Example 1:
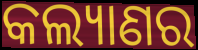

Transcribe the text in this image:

କଲ୍ୟାଣର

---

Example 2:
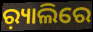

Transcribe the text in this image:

ର଼୍ୟାଲିରେ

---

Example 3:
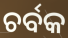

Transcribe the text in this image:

ଚର୍ବକ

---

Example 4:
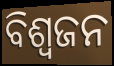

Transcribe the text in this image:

ବିଶ୍ଵଜନ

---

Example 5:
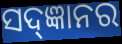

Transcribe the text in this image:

ସଦ୍‌ଜ୍ଞାନର